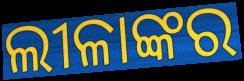
ଲୀଳାଙ୍କର